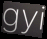
gyi